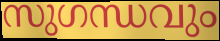
സുഗന്ധവും